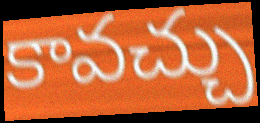
కావచ్చు